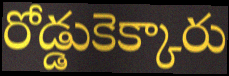
రోడ్డుకెక్కారు